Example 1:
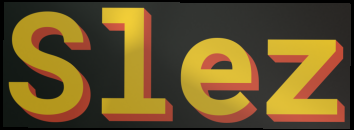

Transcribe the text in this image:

Slez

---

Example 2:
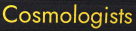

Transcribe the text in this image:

Cosmologists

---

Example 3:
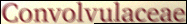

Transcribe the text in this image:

Convolvulaceae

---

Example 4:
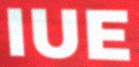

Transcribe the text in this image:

IUE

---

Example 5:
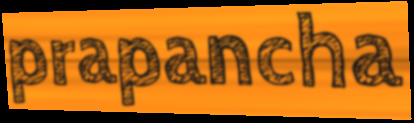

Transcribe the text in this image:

prapancha